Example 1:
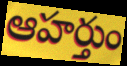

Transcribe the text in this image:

ఆహర్తుం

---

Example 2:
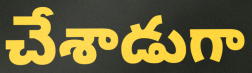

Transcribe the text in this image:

చేశాడుగా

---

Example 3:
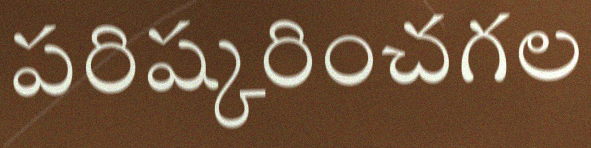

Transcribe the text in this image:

పరిష్కరించగల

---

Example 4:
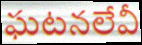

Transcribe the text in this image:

ఘటనలేవీ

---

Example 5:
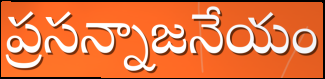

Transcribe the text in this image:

ప్రసన్నాజనేయం